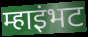
म्हाइंभट